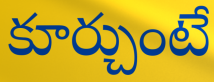
కూర్చుంటే